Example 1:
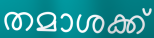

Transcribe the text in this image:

തമാശക്ക്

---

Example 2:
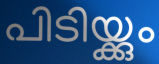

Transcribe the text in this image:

പിടിയ്ക്കും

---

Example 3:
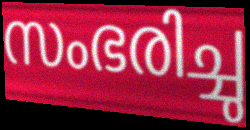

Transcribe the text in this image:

സംഭരിച്ചു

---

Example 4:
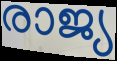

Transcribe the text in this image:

രാജ്യ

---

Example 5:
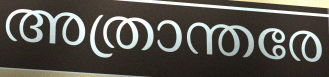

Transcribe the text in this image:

അത്രാന്തരേ